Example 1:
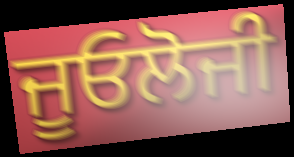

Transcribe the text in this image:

ਜੂਓਲੋਜੀ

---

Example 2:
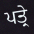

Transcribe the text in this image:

ਪਤ੍ਰੇ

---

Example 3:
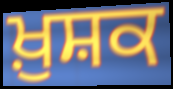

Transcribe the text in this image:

ਖ਼ੁਸ਼ਕ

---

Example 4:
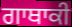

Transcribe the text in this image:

ਗਾਥਾਕੀ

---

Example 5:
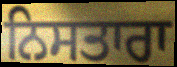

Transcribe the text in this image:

ਨਿਸਤਾਰਾ